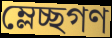
ম্লেচ্ছগণ